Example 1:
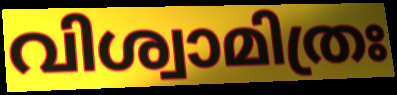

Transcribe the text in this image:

വിശ്വാമിത്രഃ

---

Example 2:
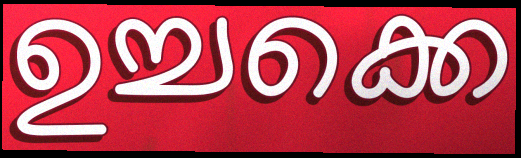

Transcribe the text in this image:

ഉച്ചക്കെ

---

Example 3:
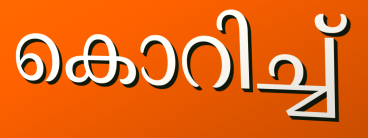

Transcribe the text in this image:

കൊറിച്ച്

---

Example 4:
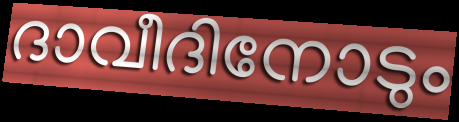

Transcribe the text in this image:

ദാവീദിനോടും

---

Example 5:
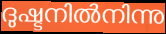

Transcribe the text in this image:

ദുഷ്ടനിൽനിന്നു